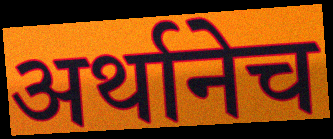
अर्थानेच